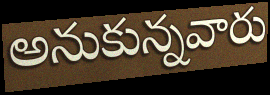
అనుకున్నవారు